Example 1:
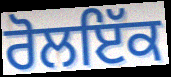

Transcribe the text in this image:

ਰੋਲਇੱਕ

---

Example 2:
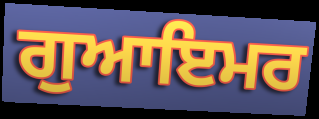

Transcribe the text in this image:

ਗੁਆਇਮਰ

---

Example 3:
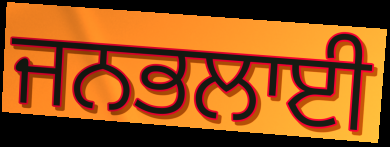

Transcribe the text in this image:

ਜਨਭਲਾਈ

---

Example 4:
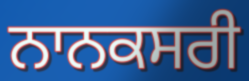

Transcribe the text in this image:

ਨਾਨਕਸਰੀ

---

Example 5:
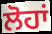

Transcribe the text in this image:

ਲੋਹਾਂ